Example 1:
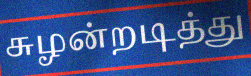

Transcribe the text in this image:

சுழன்றடித்து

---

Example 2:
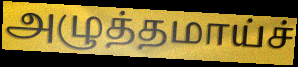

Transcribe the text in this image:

அழுத்தமாய்ச்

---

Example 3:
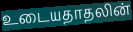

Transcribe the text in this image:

உடையதாதலின்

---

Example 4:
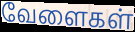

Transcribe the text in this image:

வேளைகள்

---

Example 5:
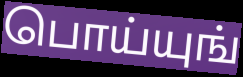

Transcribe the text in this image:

பொய்யுங்